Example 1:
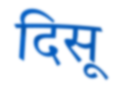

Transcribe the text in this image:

दिसू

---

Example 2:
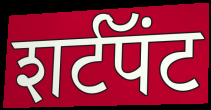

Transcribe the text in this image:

शर्टपॅंट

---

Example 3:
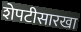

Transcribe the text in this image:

शेपटीसारखा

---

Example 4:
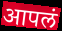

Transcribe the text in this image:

आपलं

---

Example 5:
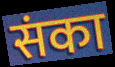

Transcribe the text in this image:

संका